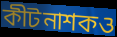
কীটনাশকও